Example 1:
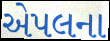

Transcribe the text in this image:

એપલના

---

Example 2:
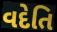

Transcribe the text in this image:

વદેતિ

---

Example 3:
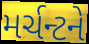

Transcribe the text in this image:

મર્ચન્ટને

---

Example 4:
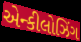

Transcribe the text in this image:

એન્કીલોઝિંગ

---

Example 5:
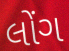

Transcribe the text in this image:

લોંગ